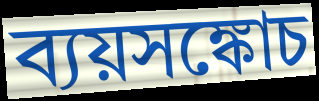
ব্যয়সঙ্কোচ